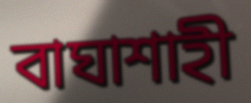
বাঘাশাহী